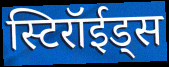
स्टिरॉईड्स